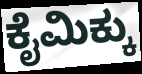
ಕೈಮಿಕ್ಕು